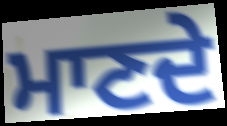
ਮਾਣਦੇ